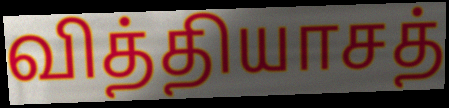
வித்தியாசத்